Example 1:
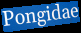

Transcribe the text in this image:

Pongidae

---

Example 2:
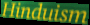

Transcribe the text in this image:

Hinduism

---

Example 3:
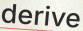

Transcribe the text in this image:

derive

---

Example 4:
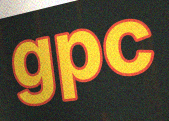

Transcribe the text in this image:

gpc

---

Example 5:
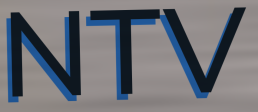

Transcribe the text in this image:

NTV